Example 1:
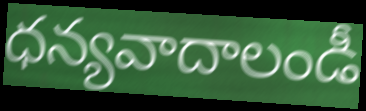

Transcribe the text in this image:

ధన్యవాదాలండీ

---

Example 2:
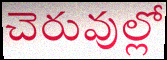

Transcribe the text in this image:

చెరువుల్లో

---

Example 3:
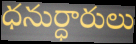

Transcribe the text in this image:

ధనుర్ధారులు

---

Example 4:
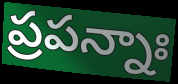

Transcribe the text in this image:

ప్రపన్నాః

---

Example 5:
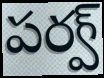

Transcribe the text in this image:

పర్వ్